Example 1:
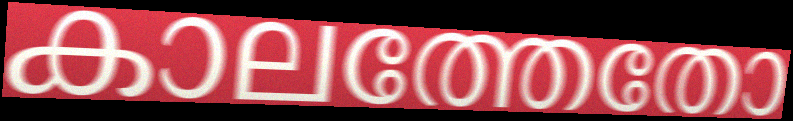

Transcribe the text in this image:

കാലത്തേതോ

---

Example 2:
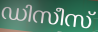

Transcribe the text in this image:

ഡിസീസ്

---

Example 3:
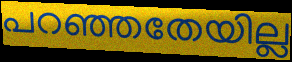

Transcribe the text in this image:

പറഞ്ഞതേയില്ല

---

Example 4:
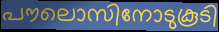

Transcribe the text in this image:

പൗലൊസിനോടുകൂടി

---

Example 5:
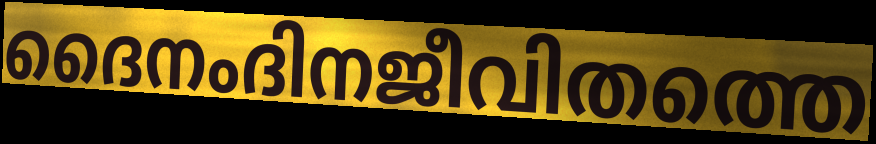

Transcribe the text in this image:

ദൈനംദിനജീവിതത്തെ